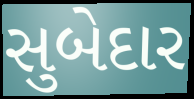
સુબેદાર